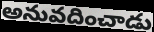
అనువదించాడు